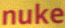
nuke